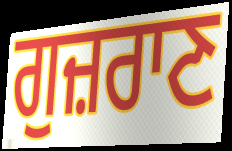
ਗੁਜ਼ਰਾਣ